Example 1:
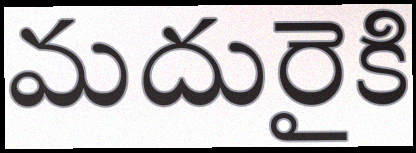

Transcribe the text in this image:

మదురైకి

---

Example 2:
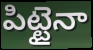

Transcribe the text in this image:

పిట్టైనా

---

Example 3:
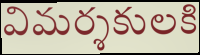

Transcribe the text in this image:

విమర్శకులకి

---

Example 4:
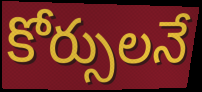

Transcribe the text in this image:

కోర్సులనే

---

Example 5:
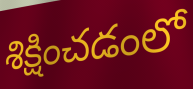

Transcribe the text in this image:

శిక్షించడంలో